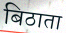
बिठाता